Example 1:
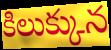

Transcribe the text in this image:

కిలుక్కున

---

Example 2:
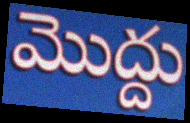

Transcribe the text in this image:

మొద్దు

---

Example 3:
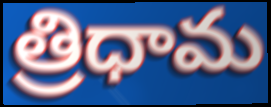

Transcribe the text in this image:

త్రిధామ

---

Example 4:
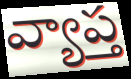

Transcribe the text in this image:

వ్యాప్త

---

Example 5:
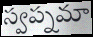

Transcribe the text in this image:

స్వప్నమా